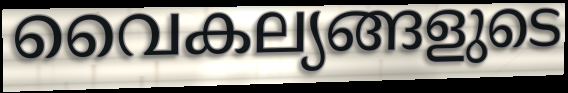
വൈകല്യങ്ങളുടെ